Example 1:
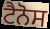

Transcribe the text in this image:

ਟੈਨੋਸ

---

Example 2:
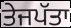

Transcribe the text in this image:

ਤੇਜਪੱਤਾ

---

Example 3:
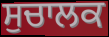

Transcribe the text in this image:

ਸੁਚਾਲਕ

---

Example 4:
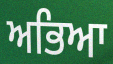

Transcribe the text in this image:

ਅਭਿਆ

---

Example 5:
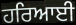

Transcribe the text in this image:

ਹਰਿਆਈ